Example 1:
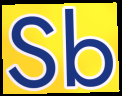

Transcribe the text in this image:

Sb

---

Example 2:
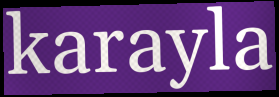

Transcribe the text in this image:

karayla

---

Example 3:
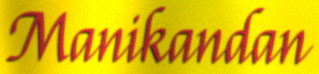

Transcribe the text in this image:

Manikandan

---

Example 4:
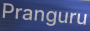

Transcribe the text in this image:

Pranguru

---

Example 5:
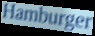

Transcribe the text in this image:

Hamburger